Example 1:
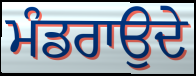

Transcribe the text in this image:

ਮੰਡਰਾਉਦੇ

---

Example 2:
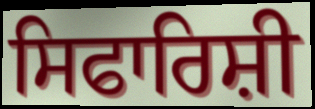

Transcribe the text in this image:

ਸਿਫਾਰਿਸ਼ੀ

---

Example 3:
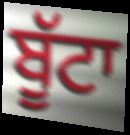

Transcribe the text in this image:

ਬੂੱਟਾ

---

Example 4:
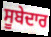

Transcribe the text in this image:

ਸੂਬੇਦਾਰ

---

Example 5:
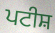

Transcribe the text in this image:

ਪਟੀਸ਼